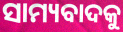
ସାମ୍ୟବାଦକୁ